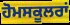
ਹੋਮਸਕੂਲਰਾਂ